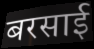
बरसाई